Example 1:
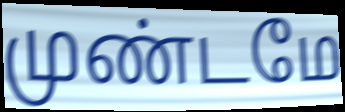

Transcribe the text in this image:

முண்டமே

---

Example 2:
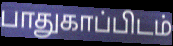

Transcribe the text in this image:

பாதுகாப்பிடம்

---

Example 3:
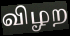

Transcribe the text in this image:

விழற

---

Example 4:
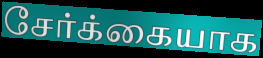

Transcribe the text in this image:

சேர்க்கையாக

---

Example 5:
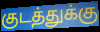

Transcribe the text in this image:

குடத்துக்கு